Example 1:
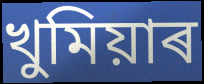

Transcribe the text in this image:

খুমিয়াৰ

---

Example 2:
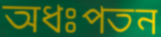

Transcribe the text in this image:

অধঃপতন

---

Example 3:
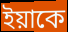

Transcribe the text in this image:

ইয়াকে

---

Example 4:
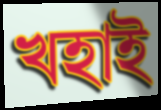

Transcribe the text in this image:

খহাই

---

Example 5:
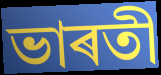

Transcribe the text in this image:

ভাৰতী